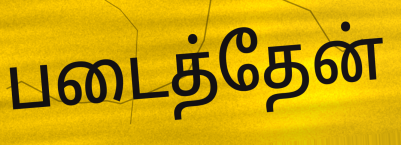
படைத்தேன்